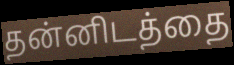
தன்னிடத்தை